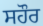
ਸਹੌਰ